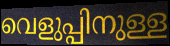
വെളുപ്പിനുള്ള